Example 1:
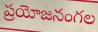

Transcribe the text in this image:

ప్రయోజనంగల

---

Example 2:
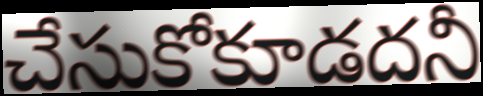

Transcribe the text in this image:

చేసుకోకూడదనీ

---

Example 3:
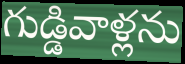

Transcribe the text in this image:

గుడ్డివాళ్లను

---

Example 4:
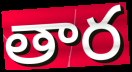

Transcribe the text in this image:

తార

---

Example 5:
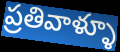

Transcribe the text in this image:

ప్రతివాళ్ళూ